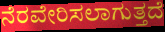
ನೆರವೇರಿಸಲಾಗುತ್ತದೆ